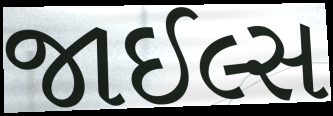
જાઈલ્સ